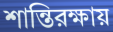
শান্তিরক্ষায়